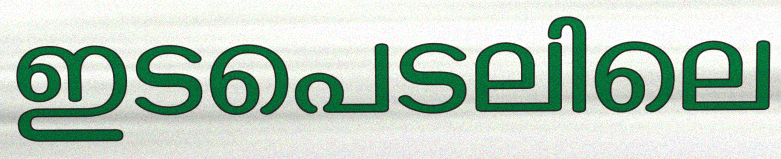
ഇടപെടലിലെ